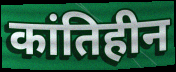
कांतिहीन